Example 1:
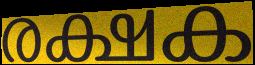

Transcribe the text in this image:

രക്ഷക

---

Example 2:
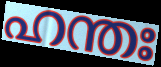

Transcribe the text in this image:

ഹന്തഃ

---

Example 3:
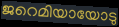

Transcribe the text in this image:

ജറെമിയായോടു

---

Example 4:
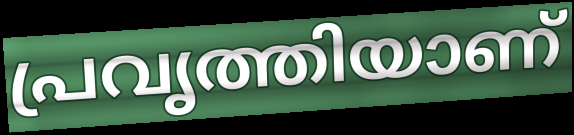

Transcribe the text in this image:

പ്രവൃത്തിയാണ്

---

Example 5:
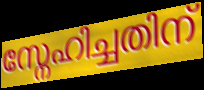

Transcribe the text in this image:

സ്നേഹിച്ചതിന്